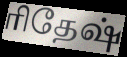
ரிதேஷ்